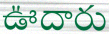
ఊదారు